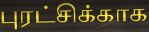
புரட்சிக்காக